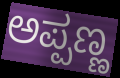
ಅಪ್ಪಣ್ಣ